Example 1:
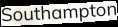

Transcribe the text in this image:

Southampton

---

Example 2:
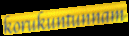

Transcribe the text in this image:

korukuntunnam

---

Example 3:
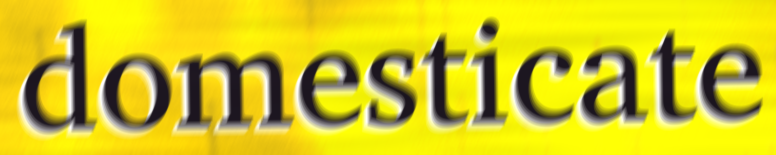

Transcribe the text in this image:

domesticate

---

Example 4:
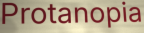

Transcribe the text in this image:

Protanopia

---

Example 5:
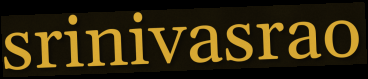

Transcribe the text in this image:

srinivasrao